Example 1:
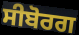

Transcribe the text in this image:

ਸੀਬੋਰਗ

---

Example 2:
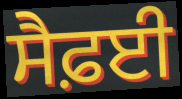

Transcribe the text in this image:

ਸੈਫ਼ਈ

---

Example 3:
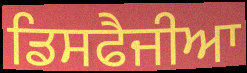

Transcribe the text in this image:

ਡਿਸਫੈਜੀਆ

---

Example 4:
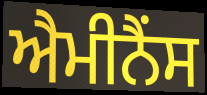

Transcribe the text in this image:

ਐਮੀਨੈਂਸ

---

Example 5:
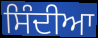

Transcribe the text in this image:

ਸਿੰਦੀਆ